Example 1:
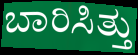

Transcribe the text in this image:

ಬಾರಿಸಿತ್ತು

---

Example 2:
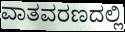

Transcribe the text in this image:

ವಾತವರಣದಲ್ಲಿ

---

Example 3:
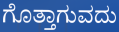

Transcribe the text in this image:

ಗೊತ್ತಾಗುವದು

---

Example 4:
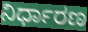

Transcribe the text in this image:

ನಿರ್ಧಾರಣ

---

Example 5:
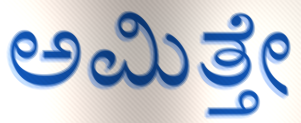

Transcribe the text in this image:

ಅಮಿತ್ತೇ